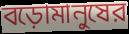
বড়োমানুষের